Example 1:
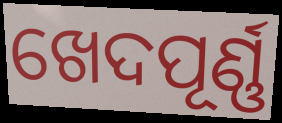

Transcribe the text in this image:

ଖେଦପୂର୍ଣ୍ଣ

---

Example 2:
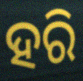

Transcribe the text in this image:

ହରି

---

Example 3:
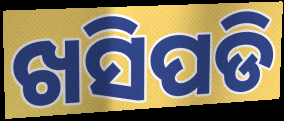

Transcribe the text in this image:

ଖସିପଡି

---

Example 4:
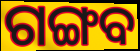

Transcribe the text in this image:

ଗଙ୍ଗବ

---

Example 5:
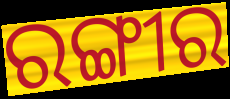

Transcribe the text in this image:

ରଙ୍ଗୀର